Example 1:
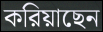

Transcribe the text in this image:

করিয়াছেন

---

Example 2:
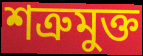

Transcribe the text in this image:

শত্রুমুক্ত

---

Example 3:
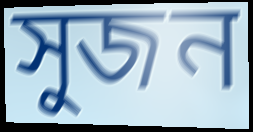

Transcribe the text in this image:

সুজন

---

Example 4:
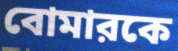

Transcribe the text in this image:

বোমারকে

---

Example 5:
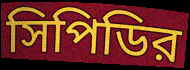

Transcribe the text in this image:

সিপিডির